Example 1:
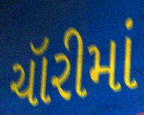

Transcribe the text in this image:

ચૉરીમાં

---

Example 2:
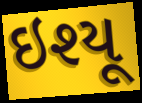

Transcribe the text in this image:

ઇશ્યૂ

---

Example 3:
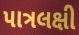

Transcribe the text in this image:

પાત્રલક્ષી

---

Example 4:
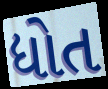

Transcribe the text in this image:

દ્યોત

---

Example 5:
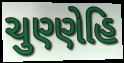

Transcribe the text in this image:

ચુણ્ણેહિ